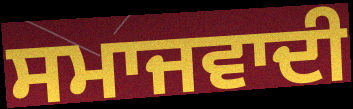
ਸਮਾਜਵਾਦੀ